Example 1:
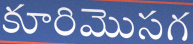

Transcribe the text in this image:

కూరిమొసగ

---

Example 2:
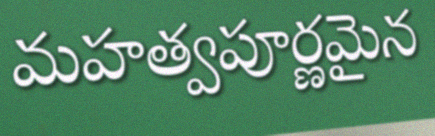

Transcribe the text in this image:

మహత్వపూర్ణమైన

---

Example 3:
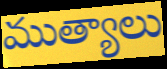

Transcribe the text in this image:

ముత్యాలు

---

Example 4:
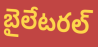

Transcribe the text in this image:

బైలేటరల్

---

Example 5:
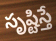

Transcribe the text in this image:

సృష్టిస్తే